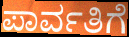
ಪಾರ್ವತಿಗೆ